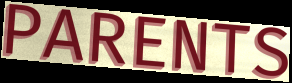
PARENTS